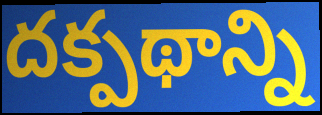
దక్పథాన్ని